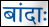
बांदाः